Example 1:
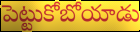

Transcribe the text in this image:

పెట్టుకోబోయాడు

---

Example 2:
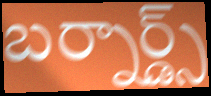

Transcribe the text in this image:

బర్నార్డ్స్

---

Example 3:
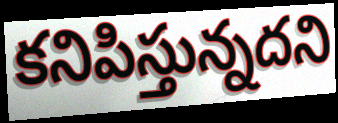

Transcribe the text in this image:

కనిపిస్తున్నదని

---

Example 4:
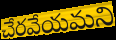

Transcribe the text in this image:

చేరవేయమని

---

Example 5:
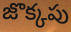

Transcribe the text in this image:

జొక్కపు